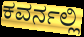
ಕವರ್ನಲ್ಲಿ